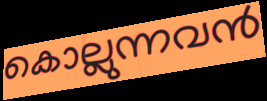
കൊല്ലുന്നവൻ